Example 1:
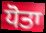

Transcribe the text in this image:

ਧੋਤਾ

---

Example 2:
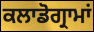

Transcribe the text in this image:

ਕਲਾਡੋਗ੍ਰਾਮਾਂ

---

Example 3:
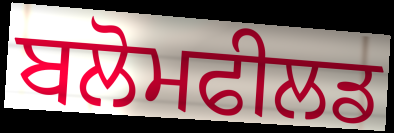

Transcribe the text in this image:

ਬਲੋਮਫੀਲਡ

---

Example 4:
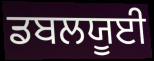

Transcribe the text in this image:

ਡਬਲਯੂਈ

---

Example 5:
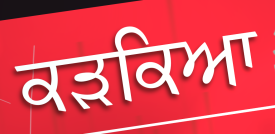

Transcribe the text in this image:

ਕੜਕਿਆ